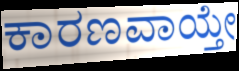
ಕಾರಣವಾಯ್ತೇ